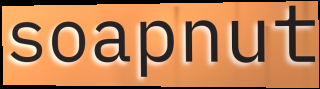
soapnut